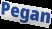
Pegan